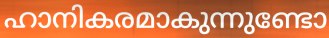
ഹാനികരമാകുന്നുണ്ടോ